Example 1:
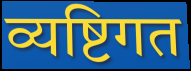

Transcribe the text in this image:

व्यष्टिगत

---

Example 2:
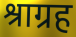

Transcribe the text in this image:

श्राग्रह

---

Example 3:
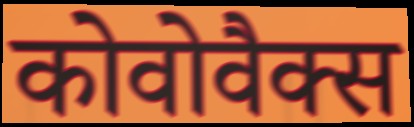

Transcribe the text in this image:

कोवोवैक्स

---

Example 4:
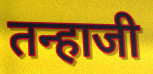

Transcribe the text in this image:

तन्हाजी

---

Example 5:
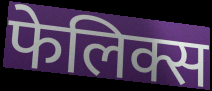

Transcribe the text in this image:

फेलिक्स